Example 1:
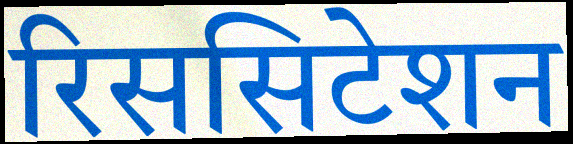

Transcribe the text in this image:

रिससिटेशन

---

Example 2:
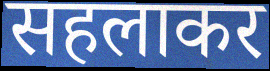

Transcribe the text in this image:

सहलाकर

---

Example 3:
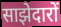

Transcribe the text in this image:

साझेदारों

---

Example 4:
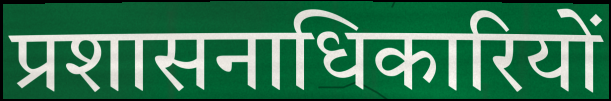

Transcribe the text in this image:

प्रशासनाधिकारियों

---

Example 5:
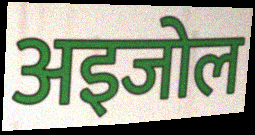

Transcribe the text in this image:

अइजोल